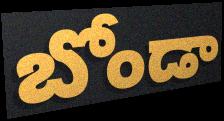
బోండా